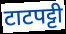
टाटपट्टी